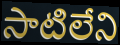
సాటిలేని